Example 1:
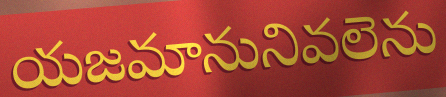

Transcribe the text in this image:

యజమానునివలెను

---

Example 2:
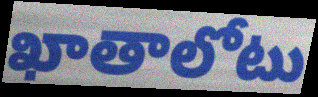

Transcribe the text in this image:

ఖాతాలోటు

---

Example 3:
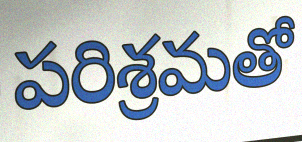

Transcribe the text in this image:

పరిశ్రమతో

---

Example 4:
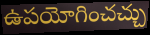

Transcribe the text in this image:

ఉపయోగించచ్చు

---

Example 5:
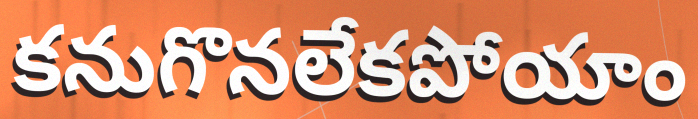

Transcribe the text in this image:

కనుగొనలేకపోయాం